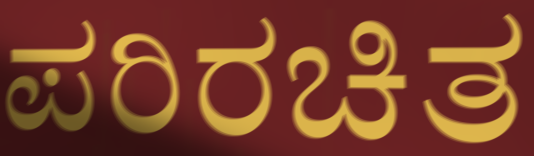
ಪರಿರಚಿತ